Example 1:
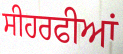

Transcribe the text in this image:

ਸੀਹਰਫੀਆਂ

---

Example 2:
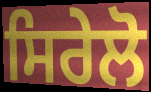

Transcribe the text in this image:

ਸਿਰੇਲੋ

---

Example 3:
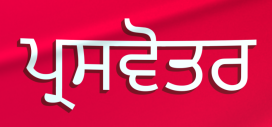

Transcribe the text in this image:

ਪ੍ਰਸਵੋਤਰ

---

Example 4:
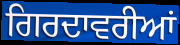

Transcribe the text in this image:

ਗਿਰਦਾਵਰੀਆਂ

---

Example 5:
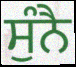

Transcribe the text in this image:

ਸੁੰਨੈ